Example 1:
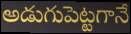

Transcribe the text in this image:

అడుగుపెట్టగానే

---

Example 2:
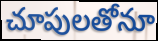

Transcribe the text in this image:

చూపులతోనూ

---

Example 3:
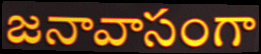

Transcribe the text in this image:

జనావాసంగా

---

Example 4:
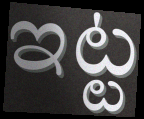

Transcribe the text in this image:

ఇట్ట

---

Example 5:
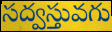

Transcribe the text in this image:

సద్వస్తువగు